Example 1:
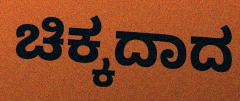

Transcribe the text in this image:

ಚಿಕ್ಕದಾದ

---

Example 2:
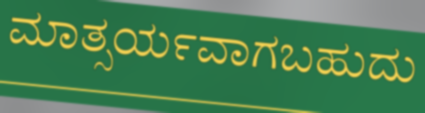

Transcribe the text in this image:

ಮಾತ್ಸರ್ಯವಾಗಬಹುದು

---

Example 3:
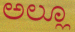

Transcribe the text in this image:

ಅಲ್ಲೂ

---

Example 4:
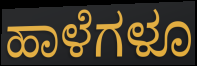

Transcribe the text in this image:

ಹಾಳೆಗಳೂ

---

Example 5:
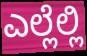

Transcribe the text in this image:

ಎಲ್ಲೆಲ್ಲಿ